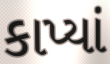
કાપ્યાં